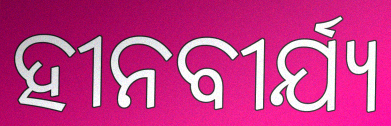
ହୀନବୀର୍ଯ୍ୟ